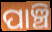
ପାଞ୍ଚି